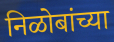
निळोबांच्या